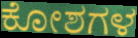
ಕೋಶಗಳ